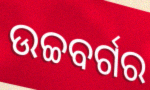
ଉଚ୍ଚବର୍ଗର